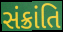
સંક્રાંતિ